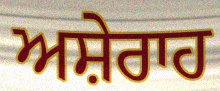
ਅਸ਼ੇਰਾਹ